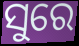
ସୁରେ